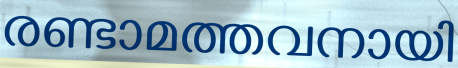
രണ്ടാമത്തവനായി